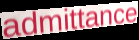
admittance